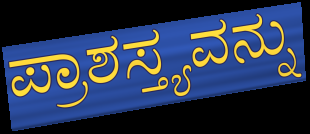
ಪ್ರಾಶಸ್ತ್ಯವನ್ನು